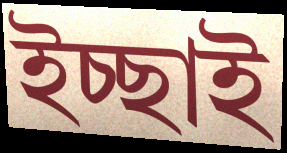
ইচ্ছাই